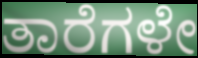
ತಾರೆಗಳೇ